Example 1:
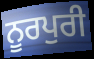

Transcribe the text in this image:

ਨੂਰਪੁਰੀ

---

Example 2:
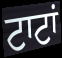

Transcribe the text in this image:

ਟਾਟਾਂ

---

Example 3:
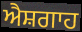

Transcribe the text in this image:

ਐਸ਼ਗਾਹ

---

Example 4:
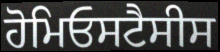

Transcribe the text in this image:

ਹੋਮਿਓਸਟੈਸੀਸ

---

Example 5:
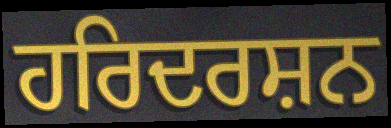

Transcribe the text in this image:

ਹਰਿਦਰਸ਼ਨ